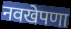
नवखेपणा